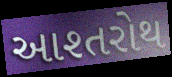
આશ્તરોથ